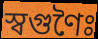
স্বগুণৈঃ